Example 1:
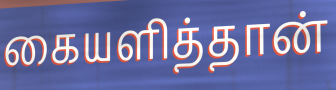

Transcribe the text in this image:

கையளித்தான்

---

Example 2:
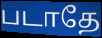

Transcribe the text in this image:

படாதே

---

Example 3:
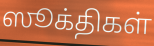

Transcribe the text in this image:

ஸூக்திகள்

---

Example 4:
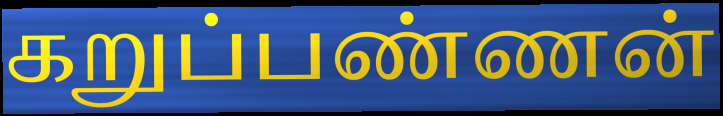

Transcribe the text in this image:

கறுப்பண்ணன்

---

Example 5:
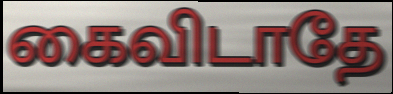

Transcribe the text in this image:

கைவிடாதே